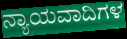
ನ್ಯಾಯವಾದಿಗಳ